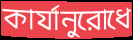
কার্যানুরোধে